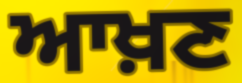
ਆਖ਼ਣ